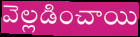
వెల్లడించాయి